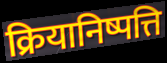
क्रियानिष्पत्ति